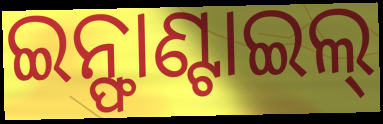
ଇନ୍ଫାଣ୍ଟାଇଲ୍